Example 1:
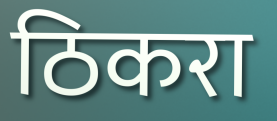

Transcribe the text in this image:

ठिकरा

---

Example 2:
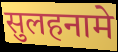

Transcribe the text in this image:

सुलहनामे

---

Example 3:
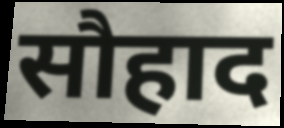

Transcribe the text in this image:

सौहाद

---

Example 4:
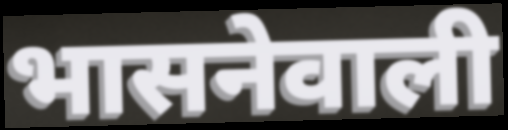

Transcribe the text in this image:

भासनेवाली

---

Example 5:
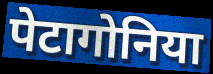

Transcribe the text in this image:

पेटागोनिया